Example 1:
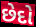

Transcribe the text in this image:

છેદો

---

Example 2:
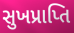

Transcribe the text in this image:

સુખપ્રાપ્તિ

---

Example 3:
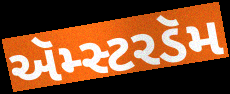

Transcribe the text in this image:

ઍમ્સ્ટરડૅમ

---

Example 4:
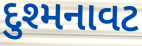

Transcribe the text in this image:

દુશ્મનાવટ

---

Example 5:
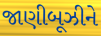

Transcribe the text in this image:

જાણીબૂઝીને